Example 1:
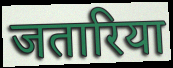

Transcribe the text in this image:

जतारिया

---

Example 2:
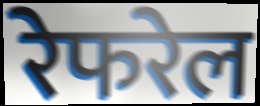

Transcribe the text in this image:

रेफरेल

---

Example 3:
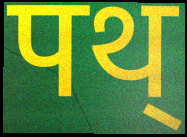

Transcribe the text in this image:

पथ्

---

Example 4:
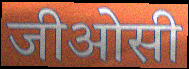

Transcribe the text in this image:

जीओसी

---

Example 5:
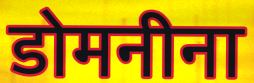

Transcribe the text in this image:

डोमनीना